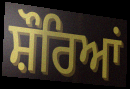
ਸ਼ੌਰਿਆਂ